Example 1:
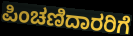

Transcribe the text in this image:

ಪಿಂಚಣಿದಾರರಿಗೆ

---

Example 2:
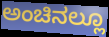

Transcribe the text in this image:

ಅಂಚಿನಲ್ಲೂ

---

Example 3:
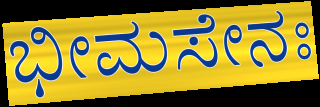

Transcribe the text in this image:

ಭೀಮಸೇನಃ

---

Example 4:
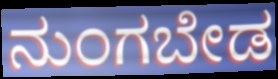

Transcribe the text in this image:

ನುಂಗಬೇಡ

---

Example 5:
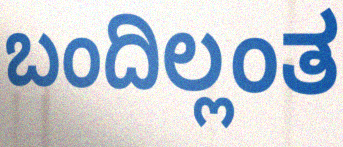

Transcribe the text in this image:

ಬಂದಿಲ್ಲಂತ